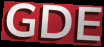
GDE